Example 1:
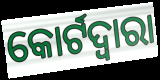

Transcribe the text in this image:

କୋର୍ଟଦ୍ୱାରା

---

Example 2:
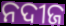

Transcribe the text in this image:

ନଦୀଜ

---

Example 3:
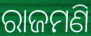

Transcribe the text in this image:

ରାଜମଣି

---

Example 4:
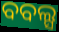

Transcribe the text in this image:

ବବଲ୍ସ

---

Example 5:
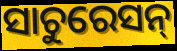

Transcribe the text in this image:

ସାଚୁରେସନ୍